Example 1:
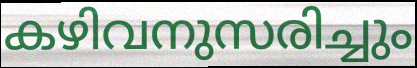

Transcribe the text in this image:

കഴിവനുസരിച്ചും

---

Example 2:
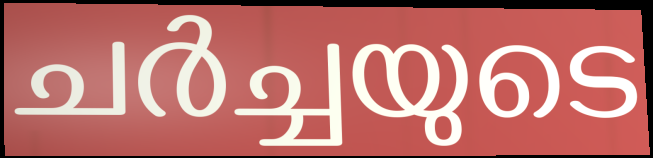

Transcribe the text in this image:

ചർച്ചയുടെ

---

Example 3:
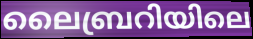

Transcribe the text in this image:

ലൈബ്രറിയിലെ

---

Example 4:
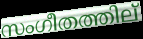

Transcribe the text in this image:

സംഗീതത്തില്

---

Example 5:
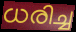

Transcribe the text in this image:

ധരിച്ച